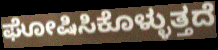
ಘೋಷಿಸಿಕೊಳ್ಳುತ್ತದೆ